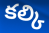
కల్కి